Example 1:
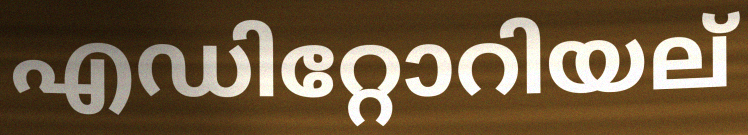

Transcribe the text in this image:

എഡിറ്റോറിയല്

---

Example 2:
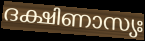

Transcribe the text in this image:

ദക്ഷിണാസ്യഃ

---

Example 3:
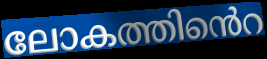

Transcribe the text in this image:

ലോകത്തിൻെറ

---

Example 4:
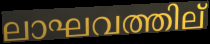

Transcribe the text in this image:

ലാഘവത്തില്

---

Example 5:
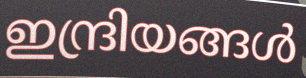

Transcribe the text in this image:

ഇന്ദ്രിയങ്ങൾ